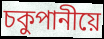
চকুপানীয়ে